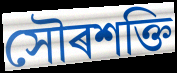
সৌৰশক্তি